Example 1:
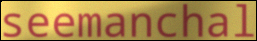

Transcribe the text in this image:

seemanchal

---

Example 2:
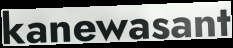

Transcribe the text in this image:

kanewasant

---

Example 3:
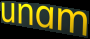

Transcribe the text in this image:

unam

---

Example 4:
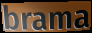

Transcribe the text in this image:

brama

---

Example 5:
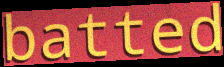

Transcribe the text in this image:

batted